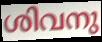
ശിവനു